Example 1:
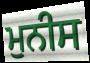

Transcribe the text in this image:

ਮੁਨੀਸ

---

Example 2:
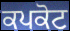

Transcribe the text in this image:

ਕਪਕੋਟ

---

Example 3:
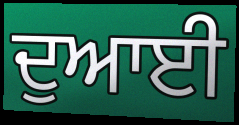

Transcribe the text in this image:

ਦੁਆਈ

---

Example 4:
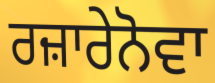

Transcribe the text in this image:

ਰਜ਼ਾਰੇਨੋਵਾ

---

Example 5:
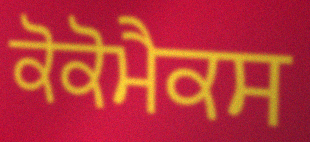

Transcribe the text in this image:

ਕੋਕੋਮੈਕਸ